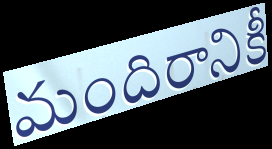
మందిరానికీ